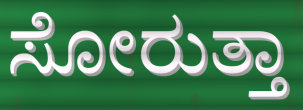
ಸೋರುತ್ತಾ